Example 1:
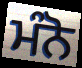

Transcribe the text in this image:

ਮੰਨੋ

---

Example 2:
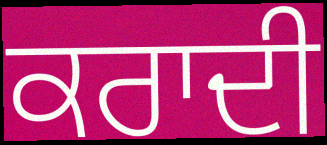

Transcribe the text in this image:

ਕਰਾਦੀ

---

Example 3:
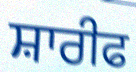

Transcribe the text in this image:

ਸ਼ਾਰੀਫ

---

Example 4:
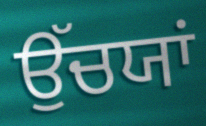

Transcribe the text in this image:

ਉੱਚਯਾਂ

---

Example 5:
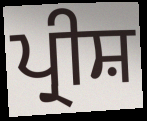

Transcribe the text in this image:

ਪ੍ਰੀਸ਼